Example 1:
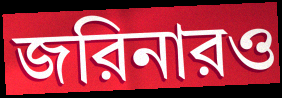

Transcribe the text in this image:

জরিনারও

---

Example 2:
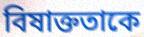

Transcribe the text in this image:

বিষাক্ততাকে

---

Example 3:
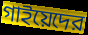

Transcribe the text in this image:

গাইয়েদের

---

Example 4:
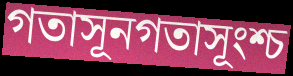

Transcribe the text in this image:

গতাসূনগতাসূংশ্চ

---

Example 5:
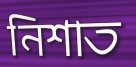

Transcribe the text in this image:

নিশাত